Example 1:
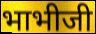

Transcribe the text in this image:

भाभीजी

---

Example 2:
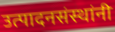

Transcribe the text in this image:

उत्पादनसंस्थांनी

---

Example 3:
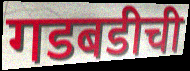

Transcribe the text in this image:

गडबडीची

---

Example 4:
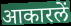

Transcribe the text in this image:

आकारलें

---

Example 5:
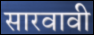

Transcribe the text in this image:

सारवावी